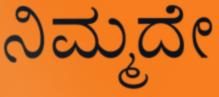
ನಿಮ್ಮದೇ